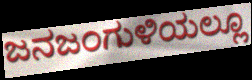
ಜನಜಂಗುಳಿಯಲ್ಲೂ